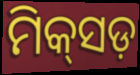
ମିକ୍‌ସଡ଼